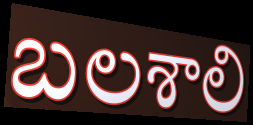
బలశాలి